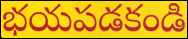
భయపడకండి